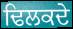
ਢਿਲਕਦੇ